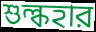
শুল্কহার